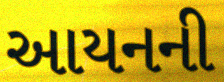
આયનની